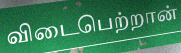
விடைபெற்றான்